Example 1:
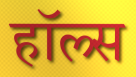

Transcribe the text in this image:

हॉल्स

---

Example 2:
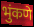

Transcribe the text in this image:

भुंकणे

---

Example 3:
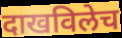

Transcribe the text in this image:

दाखविलेच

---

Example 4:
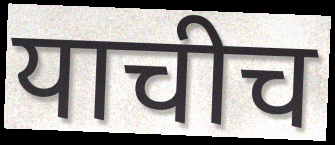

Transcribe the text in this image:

याचीच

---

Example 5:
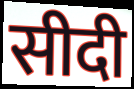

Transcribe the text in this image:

सीदी